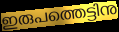
ഇരുപത്തെട്ടിനു